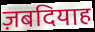
ज़बदियाह